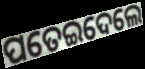
ପତେଇଦେଲେ